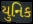
યુનિક